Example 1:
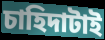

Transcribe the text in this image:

চাহিদাটাই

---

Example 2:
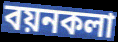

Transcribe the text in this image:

বয়নকলা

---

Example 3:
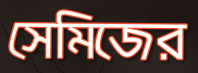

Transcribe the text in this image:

সেমিজের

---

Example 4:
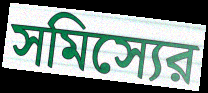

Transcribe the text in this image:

সমিস্যের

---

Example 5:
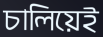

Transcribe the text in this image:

চালিয়েই